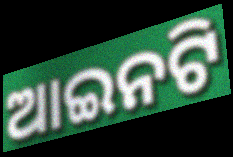
ଆଇନଟି